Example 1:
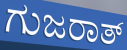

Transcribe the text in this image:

ಗುಜರಾತ್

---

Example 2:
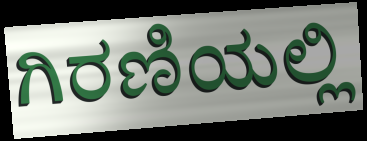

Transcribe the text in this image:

ಗಿರಣಿಯಲ್ಲಿ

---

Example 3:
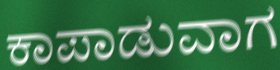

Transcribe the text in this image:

ಕಾಪಾಡುವಾಗ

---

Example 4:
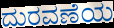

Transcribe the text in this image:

ದುರವಣೆಯ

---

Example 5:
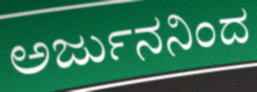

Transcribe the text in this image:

ಅರ್ಜುನನಿಂದ